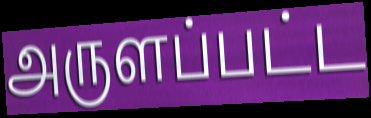
அருளப்பட்ட